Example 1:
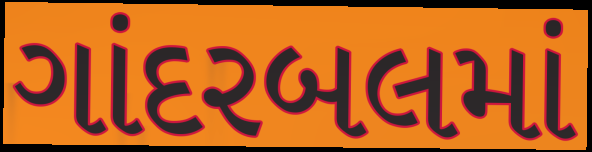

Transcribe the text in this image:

ગાંદરબલમાં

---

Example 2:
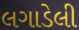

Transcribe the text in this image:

લગાડેલી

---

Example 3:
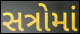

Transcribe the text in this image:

સત્રોમાં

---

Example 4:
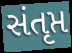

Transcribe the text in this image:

સંતૃપ્ત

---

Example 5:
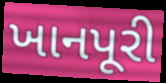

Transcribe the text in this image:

ખાનપૂરી